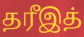
தரீஇத்